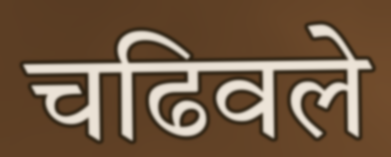
चढिवले